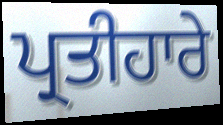
ਪ੍ਰਤੀਹਾਰੇ